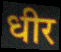
धीर